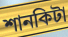
শানকিটা